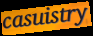
casuistry